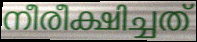
നീരീക്ഷിച്ചത്